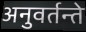
अनुवर्तन्ते